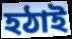
হঠাই